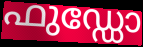
ഫുഡ്ഡോ